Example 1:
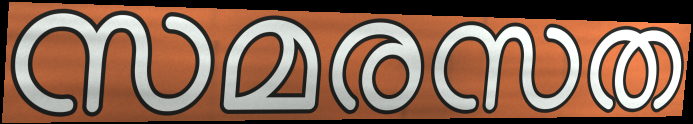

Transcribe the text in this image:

സമരസത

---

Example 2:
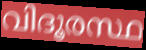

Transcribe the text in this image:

വിദൂരസ്ഥ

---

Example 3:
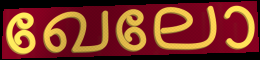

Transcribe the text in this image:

ഖേലോ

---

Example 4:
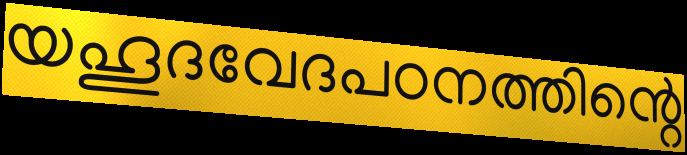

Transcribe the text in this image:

യഹൂദവേദപഠനത്തിന്റെ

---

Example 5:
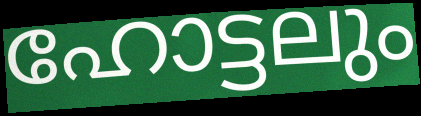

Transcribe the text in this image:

ഹോട്ടലും